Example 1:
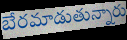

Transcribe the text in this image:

బేరమాడుతున్నారు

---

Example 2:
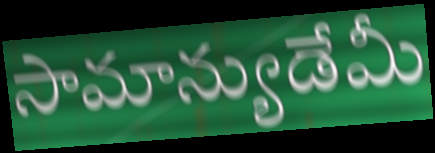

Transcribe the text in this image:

సామాన్యుడేమీ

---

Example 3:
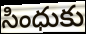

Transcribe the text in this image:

సింధుకు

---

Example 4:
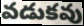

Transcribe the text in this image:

వడుకవు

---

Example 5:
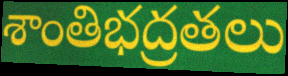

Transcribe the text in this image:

శాంతిభద్రతలు